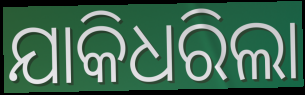
ଯାକିଧରିଲା